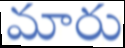
మారు